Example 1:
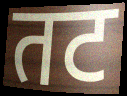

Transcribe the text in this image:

तट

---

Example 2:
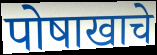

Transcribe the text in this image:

पोषाखाचे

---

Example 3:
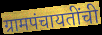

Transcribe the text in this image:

ग्रामपंचायतींची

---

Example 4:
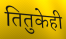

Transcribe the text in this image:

तितुकेही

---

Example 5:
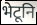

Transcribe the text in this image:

भेटूनि